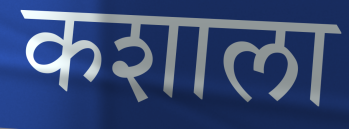
कशाला